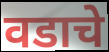
वडाचे